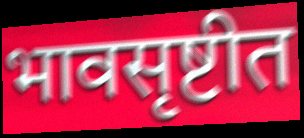
भावसृष्टीत